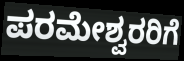
ಪರಮೇಶ್ವರರಿಗೆ